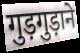
गुड़गुड़ाने